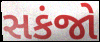
સકંજો